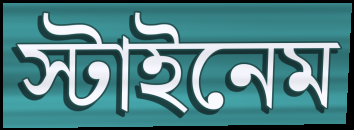
স্টাইনেম